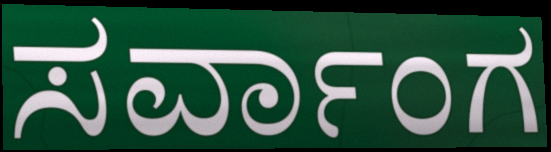
ಸರ್ವಾಂಗ